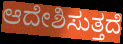
ಆದೇಶಿಸುತ್ತದೆ